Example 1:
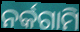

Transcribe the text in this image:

ନର୍କଗାମି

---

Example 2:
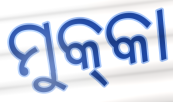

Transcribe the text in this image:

ମୁକ୍‌କା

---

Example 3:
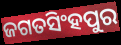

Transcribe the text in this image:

ଜଗତସିଂହପୁର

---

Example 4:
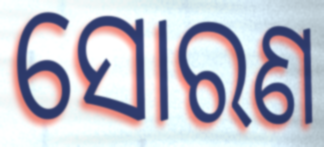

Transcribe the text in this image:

ସୋରଣ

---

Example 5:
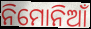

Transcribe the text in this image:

ନିମୋନିଆଁ